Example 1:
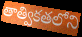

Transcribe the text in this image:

తాత్వికతలోని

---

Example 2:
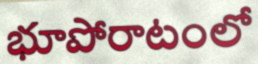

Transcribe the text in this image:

భూపోరాటంలో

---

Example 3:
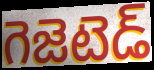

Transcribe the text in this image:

గెజెటెడ్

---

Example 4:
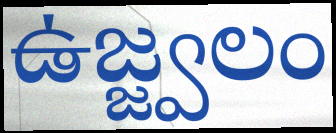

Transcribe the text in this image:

ఉజ్జ్వలం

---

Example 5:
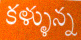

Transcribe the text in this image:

కళ్ళున్న